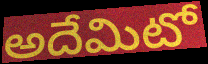
అదేమిటో